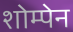
शोम्पेन